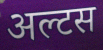
अल्टस